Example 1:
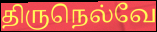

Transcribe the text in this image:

திருநெல்வே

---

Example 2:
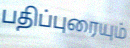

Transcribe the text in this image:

பதிப்புரையும்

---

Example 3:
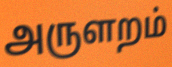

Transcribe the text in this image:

அருளறம்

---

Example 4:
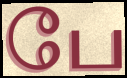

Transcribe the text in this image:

பே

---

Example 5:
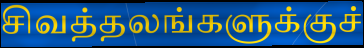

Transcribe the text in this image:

சிவத்தலங்களுக்குச்